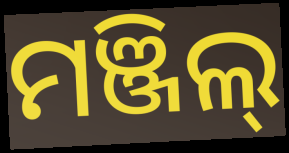
ମଞ୍ଜିଲ୍